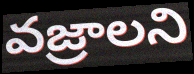
వజ్రాలని